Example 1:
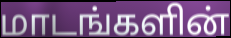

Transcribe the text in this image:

மாடங்களின்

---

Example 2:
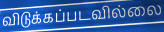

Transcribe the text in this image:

விடுக்கப்படவில்லை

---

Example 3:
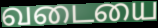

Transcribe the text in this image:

வடையை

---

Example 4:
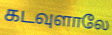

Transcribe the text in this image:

கடவுளாலே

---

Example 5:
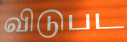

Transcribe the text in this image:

விடுபட